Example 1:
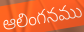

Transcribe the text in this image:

ఆలింగనము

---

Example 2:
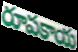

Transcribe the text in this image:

రూపకాయ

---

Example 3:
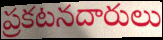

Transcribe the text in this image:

ప్రకటనదారులు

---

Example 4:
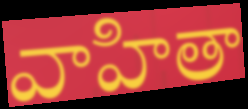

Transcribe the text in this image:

వాహితా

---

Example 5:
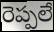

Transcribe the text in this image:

రెప్పలే